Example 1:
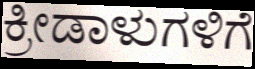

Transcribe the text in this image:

ಕ್ರೀಡಾಳುಗಳಿಗೆ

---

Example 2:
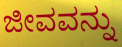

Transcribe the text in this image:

ಜೀವವನ್ನು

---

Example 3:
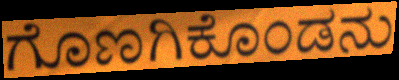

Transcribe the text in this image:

ಗೊಣಗಿಕೊಂಡನು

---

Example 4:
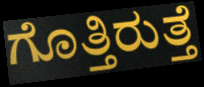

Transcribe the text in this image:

ಗೊತ್ತಿರುತ್ತೆ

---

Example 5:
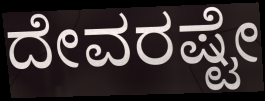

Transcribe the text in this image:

ದೇವರಷ್ಟೇ